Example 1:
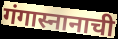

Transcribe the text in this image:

गंगास्नानाची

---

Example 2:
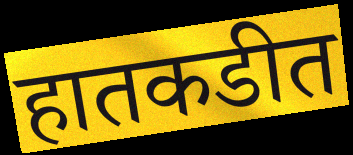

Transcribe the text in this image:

हातकडीत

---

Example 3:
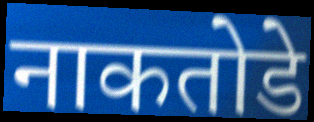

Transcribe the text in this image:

नाकतोडे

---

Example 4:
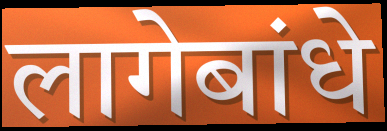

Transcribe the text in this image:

लागेबांधे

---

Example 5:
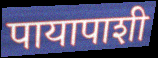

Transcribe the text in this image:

पायापाशी